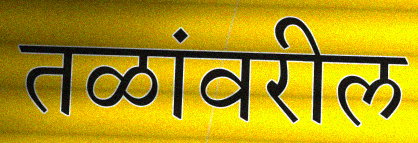
तळांवरील